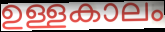
ഉള്ളകാലം